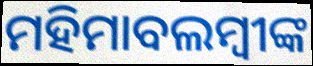
ମହିମାବଲମ୍ବୀଙ୍କ